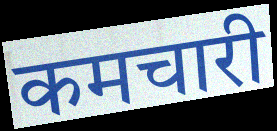
कमचारी